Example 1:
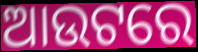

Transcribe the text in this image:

ଆଉଟରେ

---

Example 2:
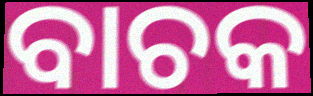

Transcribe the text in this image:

ବାଚକ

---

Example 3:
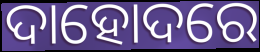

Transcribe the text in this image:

ଦାହୋଦରେ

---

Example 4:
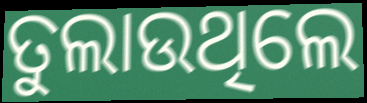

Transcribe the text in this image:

ତୁଲାଉଥିଲେ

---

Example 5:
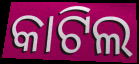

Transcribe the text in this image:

କାଟିଲ